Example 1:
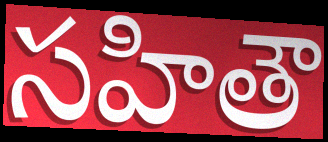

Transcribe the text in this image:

సహితౌ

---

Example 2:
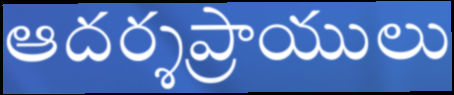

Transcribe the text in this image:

ఆదర్శప్రాయులు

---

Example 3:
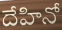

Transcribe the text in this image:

దేహినో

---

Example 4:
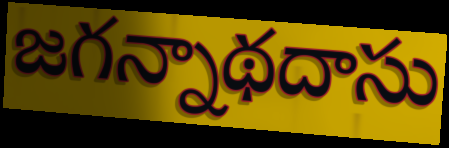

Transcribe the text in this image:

జగన్నాథదాసు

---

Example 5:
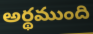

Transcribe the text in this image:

అర్థముంది